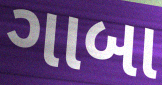
ગાબા